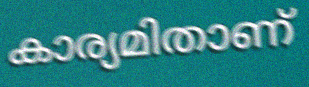
കാര്യമിതാണ്